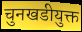
चुनखडीयुक्त